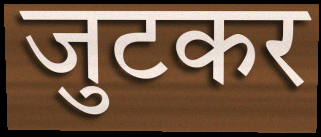
जुटकर